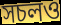
সচলও